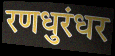
रणधुरंधर